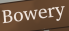
Bowery